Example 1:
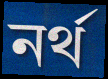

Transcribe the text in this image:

নর্থ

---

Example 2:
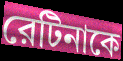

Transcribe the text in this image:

রেটিনাকে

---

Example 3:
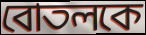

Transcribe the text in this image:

বোতলকে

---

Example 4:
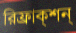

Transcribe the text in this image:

রিফ্রাক্শন্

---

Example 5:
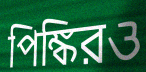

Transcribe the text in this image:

পিঙ্কিরও